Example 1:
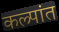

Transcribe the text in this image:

कल्पांत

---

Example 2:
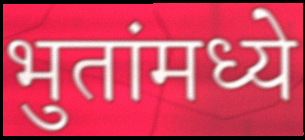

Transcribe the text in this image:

भुतांमध्ये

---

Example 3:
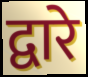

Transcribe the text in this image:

द्वारे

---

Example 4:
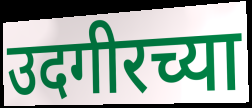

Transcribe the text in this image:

उदगीरच्या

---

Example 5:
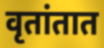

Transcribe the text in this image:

वृतांतात